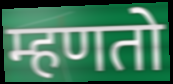
म्हणतो